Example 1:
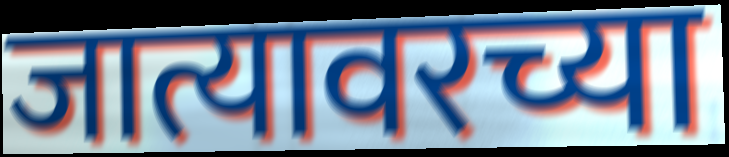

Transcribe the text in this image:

जात्यावरच्या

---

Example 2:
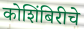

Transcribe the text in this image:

कोशिंबिरीचे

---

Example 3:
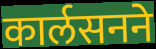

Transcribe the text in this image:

कार्लसनने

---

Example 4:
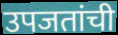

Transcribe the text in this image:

उपजतांची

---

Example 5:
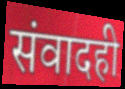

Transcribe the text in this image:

संवादही